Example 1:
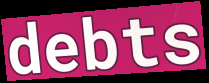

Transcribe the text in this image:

debts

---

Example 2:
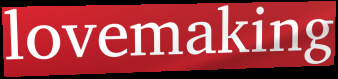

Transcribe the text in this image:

lovemaking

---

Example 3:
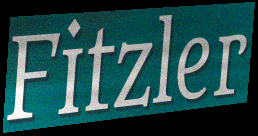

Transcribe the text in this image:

Fitzler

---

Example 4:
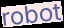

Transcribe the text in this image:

robot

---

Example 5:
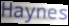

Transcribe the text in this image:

Haynes